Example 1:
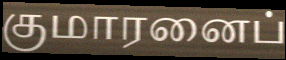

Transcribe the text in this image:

குமாரனைப்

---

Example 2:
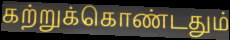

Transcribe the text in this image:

கற்றுக்கொண்டதும்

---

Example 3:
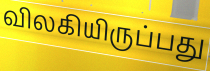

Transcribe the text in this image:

விலகியிருப்பது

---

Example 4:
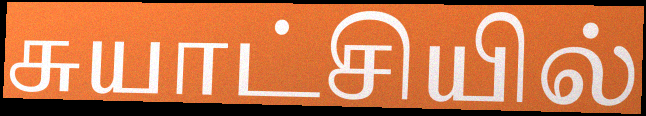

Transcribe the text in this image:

சுயாட்சியில்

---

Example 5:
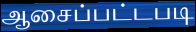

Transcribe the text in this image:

ஆசைப்பட்டபடி